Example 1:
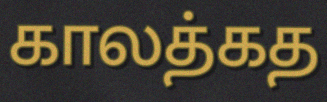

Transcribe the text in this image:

காலத்கத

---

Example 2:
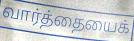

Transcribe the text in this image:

வார்த்தையைக்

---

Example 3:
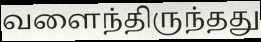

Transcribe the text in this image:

வளைந்திருந்தது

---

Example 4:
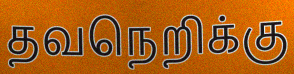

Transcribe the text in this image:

தவநெறிக்கு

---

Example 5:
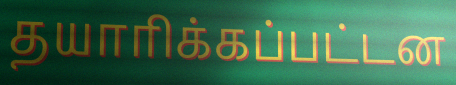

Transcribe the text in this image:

தயாரிக்கப்பட்டன